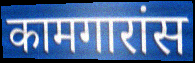
कामगारांस